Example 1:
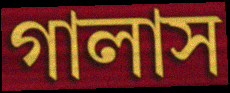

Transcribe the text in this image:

গালাস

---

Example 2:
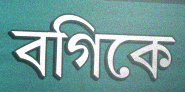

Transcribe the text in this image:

বগিকে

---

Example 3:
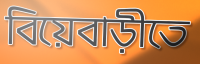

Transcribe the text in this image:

বিয়েবাড়ীতে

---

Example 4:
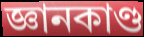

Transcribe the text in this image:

জ্ঞানকাণ্ড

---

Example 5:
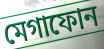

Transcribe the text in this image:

মেগাফোন